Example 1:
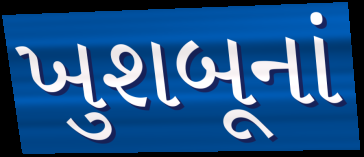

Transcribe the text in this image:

ખુશબૂનાં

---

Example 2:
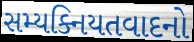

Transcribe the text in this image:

સમ્યક્નિયતવાદનો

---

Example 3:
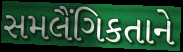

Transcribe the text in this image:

સમલૈંગિકતાને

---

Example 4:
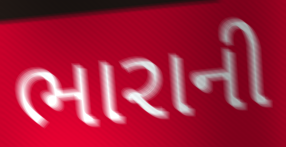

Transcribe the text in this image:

ભારાની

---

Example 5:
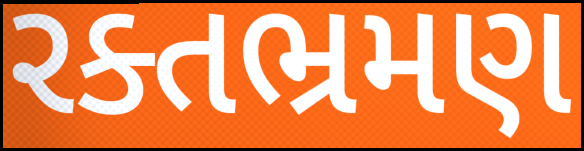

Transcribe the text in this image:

રક્તભ્રમણ